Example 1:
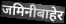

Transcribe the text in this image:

जमिनीबाहेर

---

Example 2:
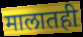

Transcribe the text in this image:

मालातही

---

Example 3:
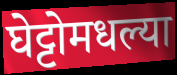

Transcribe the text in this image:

घेट्टोमधल्या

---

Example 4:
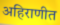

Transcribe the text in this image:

अहिराणीत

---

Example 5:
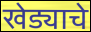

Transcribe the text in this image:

खेड्याचे